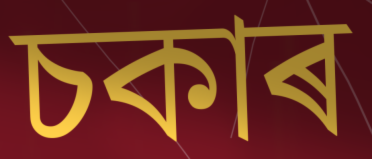
চকাৰ